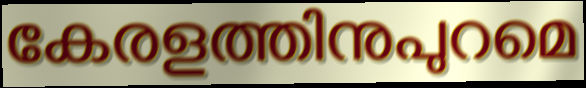
കേരളത്തിനുപുറമെ